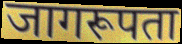
जागरूपता